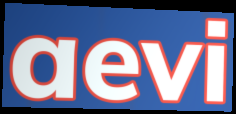
aevi